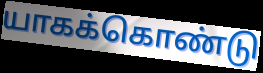
யாகக்கொண்டு